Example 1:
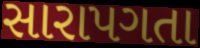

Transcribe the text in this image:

સારાપગતા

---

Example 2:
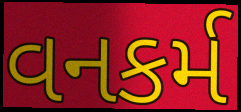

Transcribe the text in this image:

વનકર્મ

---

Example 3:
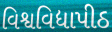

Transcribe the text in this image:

વિશ્વવિદ્યાપીઠ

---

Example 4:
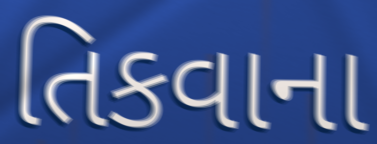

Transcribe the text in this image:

તિકવાના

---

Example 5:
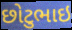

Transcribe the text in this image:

છોટુભાઇ